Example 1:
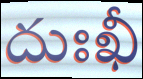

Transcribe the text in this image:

దుఃఖీ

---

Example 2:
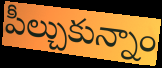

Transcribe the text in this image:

పీల్చుకున్నాం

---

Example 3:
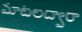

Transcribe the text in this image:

మాటలద్వారా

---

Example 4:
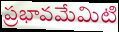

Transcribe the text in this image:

ప్రభావమేమిటి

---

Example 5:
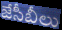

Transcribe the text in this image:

జేసీబీలు